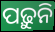
ପଢ଼ୁନି